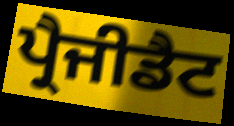
ਪ੍ਰੈਜੀਡੈਟ